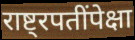
राष्ट्रपतींपेक्षा